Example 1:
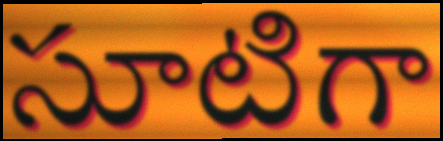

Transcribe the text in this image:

సూటిగా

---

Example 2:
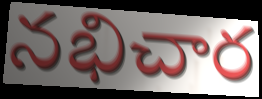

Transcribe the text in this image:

నభిచార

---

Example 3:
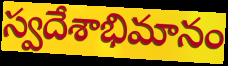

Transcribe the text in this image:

స్వదేశాభిమానం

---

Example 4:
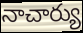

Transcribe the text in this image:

నాచార్యు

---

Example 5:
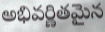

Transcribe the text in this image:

అభివర్ణితమైన